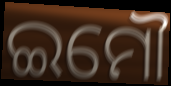
ଇମୌ